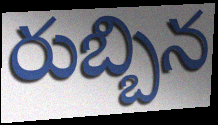
రుబ్బిన